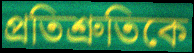
প্রতিশ্রুতিকে